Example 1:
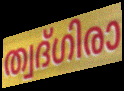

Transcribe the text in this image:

ത്വദ്ഗിരാ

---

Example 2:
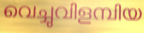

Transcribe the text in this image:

വെച്ചുവിളമ്പിയ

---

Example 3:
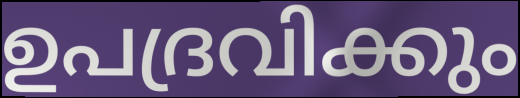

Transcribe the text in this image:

ഉപദ്രവിക്കും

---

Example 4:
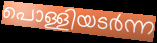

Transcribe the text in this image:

പൊള്ളിയടർന്ന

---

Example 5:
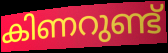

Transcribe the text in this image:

കിണറുണ്ട്